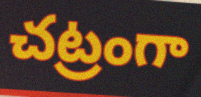
చట్రంగా